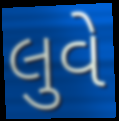
લુવે